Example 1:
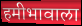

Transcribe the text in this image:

हमीभावाला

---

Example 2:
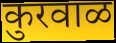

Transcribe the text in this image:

कुरवाळ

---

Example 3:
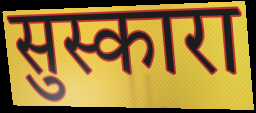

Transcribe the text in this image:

सुस्कारा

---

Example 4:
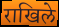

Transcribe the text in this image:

राखिले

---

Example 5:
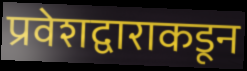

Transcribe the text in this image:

प्रवेशद्वाराकडून